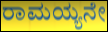
ರಾಮಯ್ಯನೇ